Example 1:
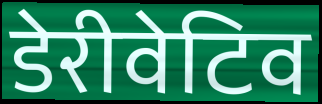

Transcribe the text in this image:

डेरीवेटिव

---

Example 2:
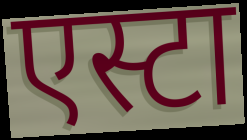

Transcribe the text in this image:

एस्टा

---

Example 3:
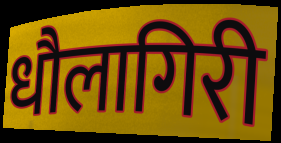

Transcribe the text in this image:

धौलागिरी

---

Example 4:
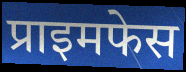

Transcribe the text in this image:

प्राइमफेस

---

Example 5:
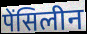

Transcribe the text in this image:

पेंसिलीन